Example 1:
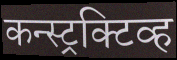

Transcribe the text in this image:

कन्स्ट्रक्टिव्ह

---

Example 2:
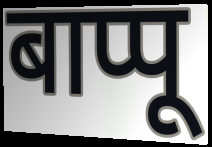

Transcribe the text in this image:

बाप्पू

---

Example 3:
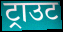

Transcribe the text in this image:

ट्राउट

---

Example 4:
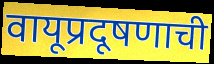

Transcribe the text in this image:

वायूप्रदूषणाची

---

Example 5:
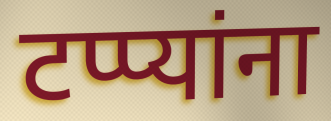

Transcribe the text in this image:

टप्प्यांना